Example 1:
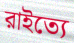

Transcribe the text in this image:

রাইত্যে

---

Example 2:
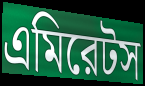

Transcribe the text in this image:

এমিরেটস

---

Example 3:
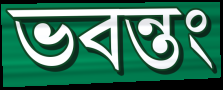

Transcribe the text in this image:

ভবন্তং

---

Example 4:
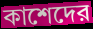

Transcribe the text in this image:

কাশেদের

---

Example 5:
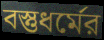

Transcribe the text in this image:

বস্তুধর্মের